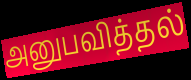
அனுபவித்தல்